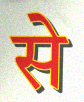
से